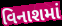
વિનાશમાં